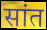
सांत